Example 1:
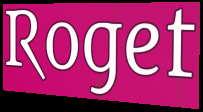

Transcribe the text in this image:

Roget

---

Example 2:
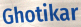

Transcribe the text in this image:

Ghotikar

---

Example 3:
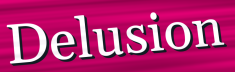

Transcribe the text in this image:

Delusion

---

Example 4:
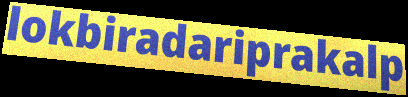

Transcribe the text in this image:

lokbiradariprakalp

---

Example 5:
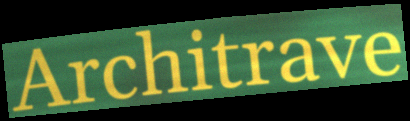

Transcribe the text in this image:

Architrave